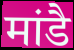
मांडै